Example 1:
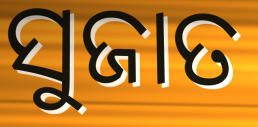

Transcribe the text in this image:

ସୁଜାତ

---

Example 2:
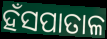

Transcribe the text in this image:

ହଁସପାତାଳ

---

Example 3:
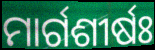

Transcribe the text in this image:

ମାର୍ଗଶୀର୍ଷଃ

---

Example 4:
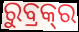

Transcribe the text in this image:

ରୁବ୍ରକ୍‍ର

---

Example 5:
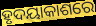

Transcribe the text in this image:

ହୃଦୟାକାଶରେ